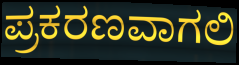
ಪ್ರಕರಣವಾಗಲಿ